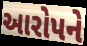
આરોપને